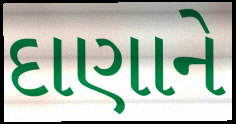
દાણાને